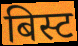
बिस्ट